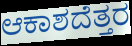
ಆಕಾಶದೆತ್ತರ